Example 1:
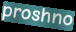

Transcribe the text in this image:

proshno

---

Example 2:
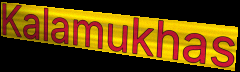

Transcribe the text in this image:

Kalamukhas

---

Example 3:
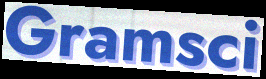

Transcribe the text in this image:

Gramsci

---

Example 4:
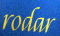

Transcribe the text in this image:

rodar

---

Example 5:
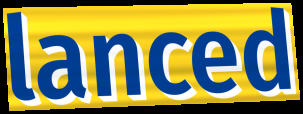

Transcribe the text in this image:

lanced